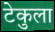
टेकुला